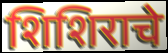
शिशिराचे